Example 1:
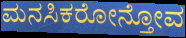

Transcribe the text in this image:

ಮನಸಿಕರೋನ್ತೋವ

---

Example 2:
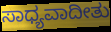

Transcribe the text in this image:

ಸಾಧ್ಯವಾದೀತು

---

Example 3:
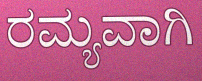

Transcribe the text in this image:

ರಮ್ಯವಾಗಿ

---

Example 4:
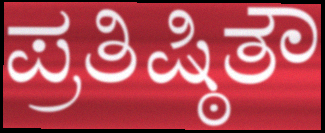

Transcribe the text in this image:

ಪ್ರತಿಷ್ಠಿತೌ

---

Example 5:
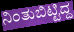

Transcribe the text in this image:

ನಿಂತುಬಿಟ್ಟಿದ್ದ